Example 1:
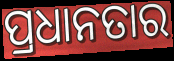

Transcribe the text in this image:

ପ୍ରଧାନତାର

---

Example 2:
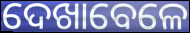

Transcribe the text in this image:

ଦେଖାବେଳେ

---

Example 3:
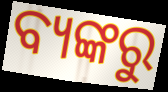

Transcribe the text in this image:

ବ୍ୟଙ୍କରୁ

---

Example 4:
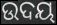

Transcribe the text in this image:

ଉଦୟ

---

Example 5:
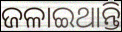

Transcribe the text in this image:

ଜଳାଇଥାନ୍ତି